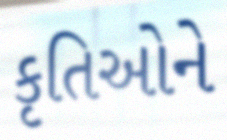
કૃતિઓને